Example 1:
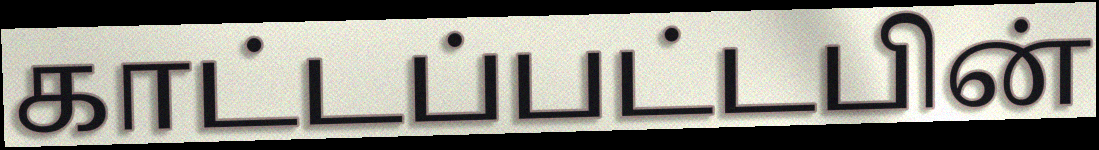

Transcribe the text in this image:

காட்டப்பட்டபின்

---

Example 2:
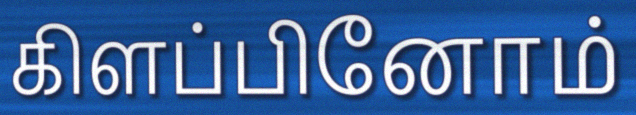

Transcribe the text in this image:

கிளப்பினோம்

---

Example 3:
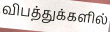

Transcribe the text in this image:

விபத்துக்களில்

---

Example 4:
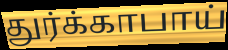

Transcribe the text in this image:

துர்க்காபாய்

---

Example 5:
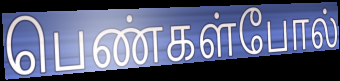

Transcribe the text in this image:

பெண்கள்போல்